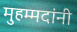
मुहम्मदांनी